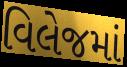
વિલેજમાં